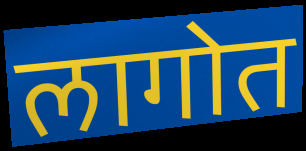
लागोत